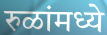
रुळांमध्ये